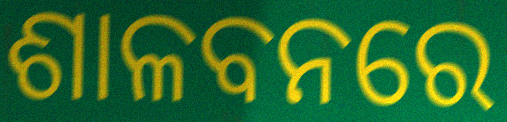
ଶାଳବନରେ